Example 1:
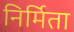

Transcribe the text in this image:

निर्मिता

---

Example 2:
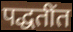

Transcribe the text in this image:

पद्धतींत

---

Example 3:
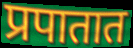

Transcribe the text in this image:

प्रपातात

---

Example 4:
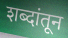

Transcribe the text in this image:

शब्दांतून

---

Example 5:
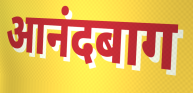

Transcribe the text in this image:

आनंदबाग